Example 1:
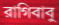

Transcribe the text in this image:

রাগিবাবু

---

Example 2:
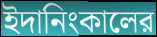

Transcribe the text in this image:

ইদানিংকালের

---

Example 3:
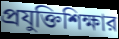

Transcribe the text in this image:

প্রযুক্তিশিক্ষার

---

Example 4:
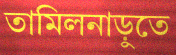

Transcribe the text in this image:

তামিলনাড়ুতে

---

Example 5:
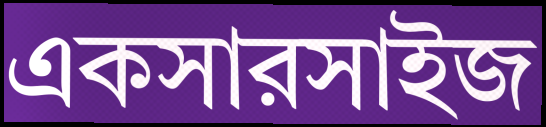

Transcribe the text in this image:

একসারসাইজ